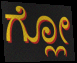
ಗ್ಲೋ